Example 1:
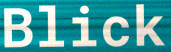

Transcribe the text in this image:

Blick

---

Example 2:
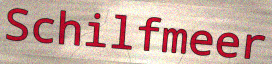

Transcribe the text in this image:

Schilfmeer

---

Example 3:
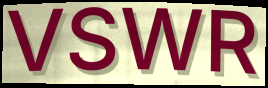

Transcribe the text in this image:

VSWR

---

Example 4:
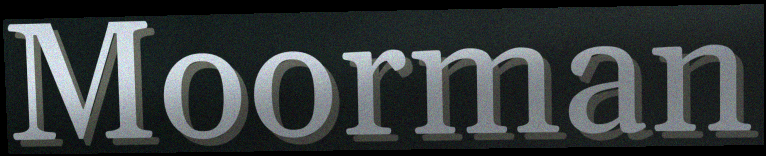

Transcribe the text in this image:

Moorman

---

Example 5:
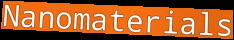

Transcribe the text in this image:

Nanomaterials